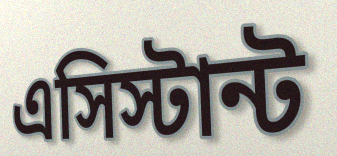
এসিস্টান্ট